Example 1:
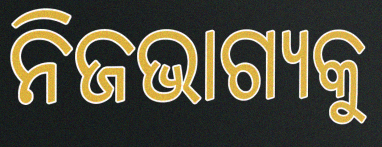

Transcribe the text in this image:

ନିଜଭାଗ୍ୟକୁ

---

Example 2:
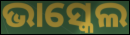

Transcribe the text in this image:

ଭାସ୍କେଲ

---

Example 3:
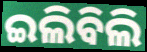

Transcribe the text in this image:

ଇଲିବିଲି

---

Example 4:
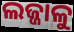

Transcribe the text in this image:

ଲଜ୍ଜାଳୁ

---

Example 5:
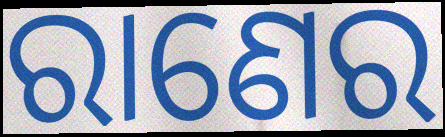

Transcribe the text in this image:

ରାଣେର